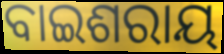
ବାଇଶରାୟ